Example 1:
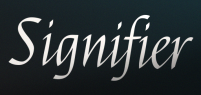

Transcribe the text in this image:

Signifier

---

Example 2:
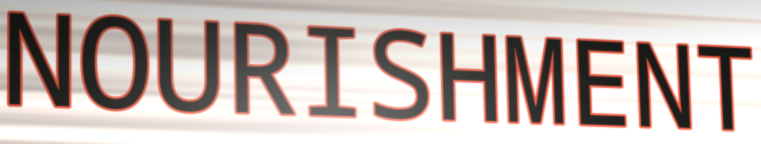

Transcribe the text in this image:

NOURISHMENT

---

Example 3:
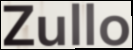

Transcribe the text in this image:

Zullo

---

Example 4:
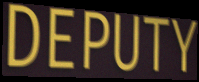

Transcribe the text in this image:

DEPUTY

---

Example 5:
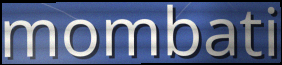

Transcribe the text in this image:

mombati